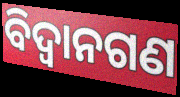
ବିଦ୍ଵାନଗଣ